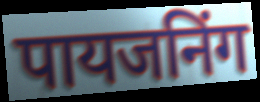
पायजनिंग